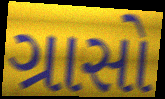
ગ્રાસો